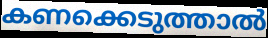
കണക്കെടുത്താൽ